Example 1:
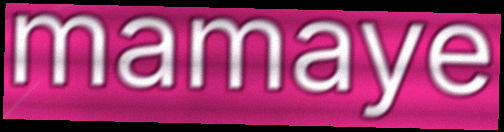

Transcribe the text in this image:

mamaye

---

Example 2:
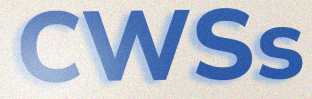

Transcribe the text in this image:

CWSs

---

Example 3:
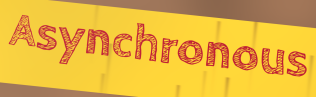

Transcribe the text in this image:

Asynchronous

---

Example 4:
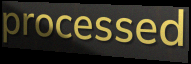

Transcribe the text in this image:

processed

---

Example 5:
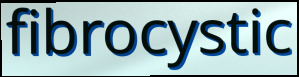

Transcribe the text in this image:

fibrocystic